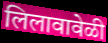
लिलावावेळी